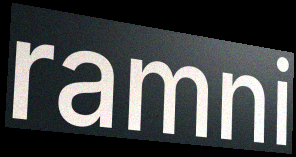
ramni